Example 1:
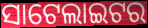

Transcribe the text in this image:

ସାଟେଲାଇଟର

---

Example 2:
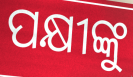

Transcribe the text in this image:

ପକ୍ଷୀଙ୍କୁ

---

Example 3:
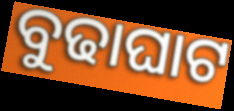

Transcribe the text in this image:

ବୁଢାଘାଟ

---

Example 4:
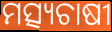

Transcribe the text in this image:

ମତ୍ସ୍ୟଚାଷୀ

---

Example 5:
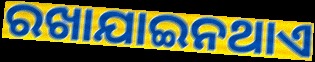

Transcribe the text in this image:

ରଖାଯାଇନଥାଏ